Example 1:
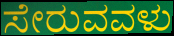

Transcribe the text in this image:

ಸೇರುವವಳು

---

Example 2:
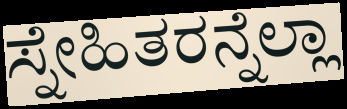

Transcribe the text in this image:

ಸ್ನೇಹಿತರನ್ನೆಲ್ಲಾ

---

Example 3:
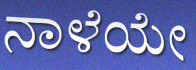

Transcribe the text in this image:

ನಾಳೆಯೇ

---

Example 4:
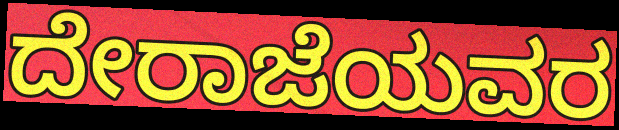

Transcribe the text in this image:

ದೇರಾಜೆಯವರ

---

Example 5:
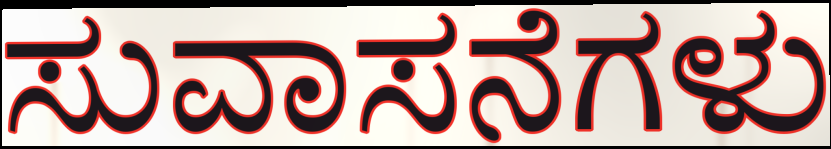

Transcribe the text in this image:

ಸುವಾಸನೆಗಳು